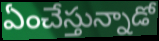
ఏంచేస్తున్నాడో